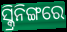
ସ୍କ୍ରିନିଙ୍ଗରେ